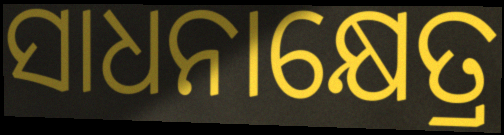
ସାଧନାକ୍ଷେତ୍ର